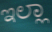
ಇಲ್ಲಾ